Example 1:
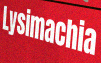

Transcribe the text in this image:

Lysimachia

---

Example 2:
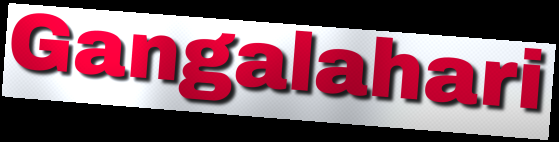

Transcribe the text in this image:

Gangalahari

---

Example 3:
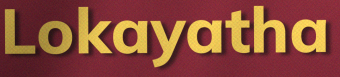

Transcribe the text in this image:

Lokayatha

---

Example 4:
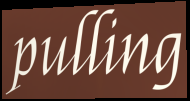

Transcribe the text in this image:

pulling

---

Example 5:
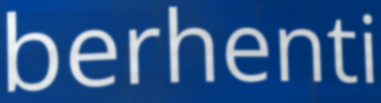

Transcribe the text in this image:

berhenti